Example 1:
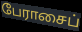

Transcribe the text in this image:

பேராசைப்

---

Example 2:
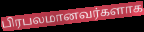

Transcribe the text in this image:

பிரபலமானவர்களாக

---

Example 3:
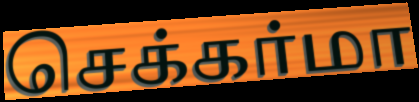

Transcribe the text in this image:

செக்கர்மா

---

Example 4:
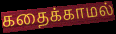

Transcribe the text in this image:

கதைக்காமல்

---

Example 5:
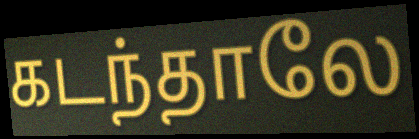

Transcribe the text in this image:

கடந்தாலே